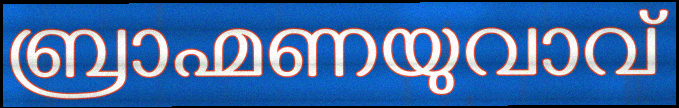
ബ്രാഹ്മണയുവാവ്